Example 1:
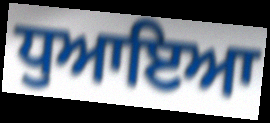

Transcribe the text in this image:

ਧੁਆਇਆ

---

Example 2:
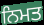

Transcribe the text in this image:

ਨਿਮਤ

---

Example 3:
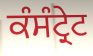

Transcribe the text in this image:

ਕੰਸੰਟ੍ਰੇਟ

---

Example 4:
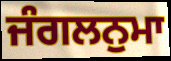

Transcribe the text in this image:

ਜੰਗਲਨੁਮਾ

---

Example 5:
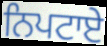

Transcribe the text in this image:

ਨਿਪਟਾਏ